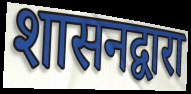
शासनद्वारा